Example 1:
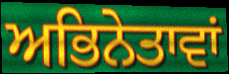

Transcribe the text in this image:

ਅਭਿਨੇਤਾਵਾਂ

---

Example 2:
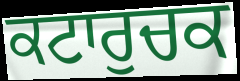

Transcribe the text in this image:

ਕਟਾਰੁਚਕ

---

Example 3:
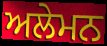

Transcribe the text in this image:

ਅਲੇਮਨ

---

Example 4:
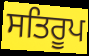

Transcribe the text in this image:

ਸਤਿਰੂਪ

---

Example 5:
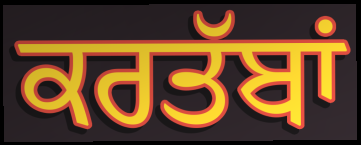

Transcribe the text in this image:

ਕਰਤੱਬਾਂ